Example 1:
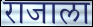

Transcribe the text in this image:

राजाला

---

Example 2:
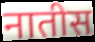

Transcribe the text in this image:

नातीस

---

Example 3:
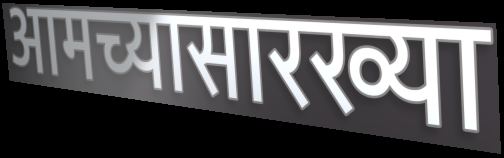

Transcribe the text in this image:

आमच्यासारख्या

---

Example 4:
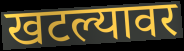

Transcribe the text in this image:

खटल्यावर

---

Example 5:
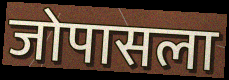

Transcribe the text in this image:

जोपासला